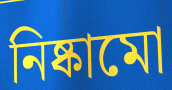
নিষ্কামো